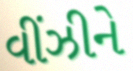
વીંઝીને